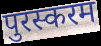
पुरस्करम